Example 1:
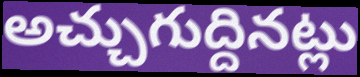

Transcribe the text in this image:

అచ్చుగుద్దినట్లు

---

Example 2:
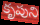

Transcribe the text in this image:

కృపుని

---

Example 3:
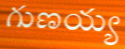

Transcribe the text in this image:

గుణయ్య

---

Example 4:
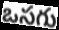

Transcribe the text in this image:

ఒసగు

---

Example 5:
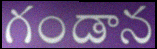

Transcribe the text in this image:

గండాన